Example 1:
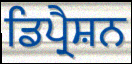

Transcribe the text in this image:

ਡਿਪ੍ਰੈਸ਼ਨ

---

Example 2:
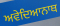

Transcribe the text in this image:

ਅਵੇਦਿਆਨਾਥ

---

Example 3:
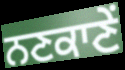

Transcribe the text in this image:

ਨਣਕਾਣੇਂ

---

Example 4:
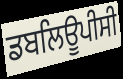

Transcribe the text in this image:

ਡਬਲਿਊਪੀਸੀ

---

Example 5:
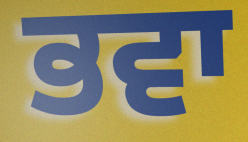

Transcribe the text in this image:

ਭਵਾ